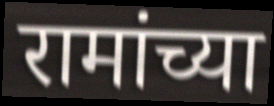
रामांच्या